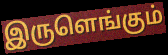
இருளெங்கும்